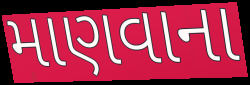
માણવાના